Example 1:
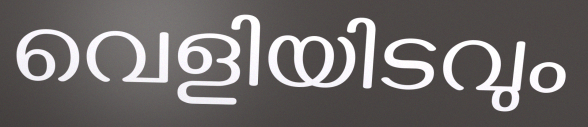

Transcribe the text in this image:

വെളിയിടവും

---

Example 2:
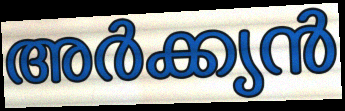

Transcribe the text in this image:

അർക്ക്യൻ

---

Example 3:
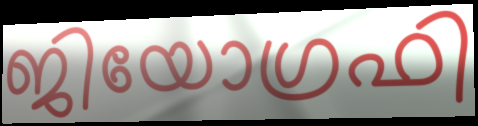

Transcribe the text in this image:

ജിയോഗ്രഫി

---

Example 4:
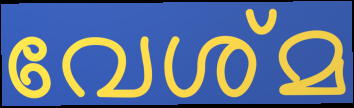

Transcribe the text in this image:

വേശ്മ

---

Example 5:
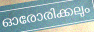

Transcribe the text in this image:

ഓരോരിക്കലും